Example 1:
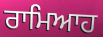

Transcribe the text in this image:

ਰਾਮਿਆਹ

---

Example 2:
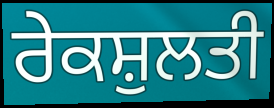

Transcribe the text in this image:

ਰੇਕਸ਼ੁਲਤੀ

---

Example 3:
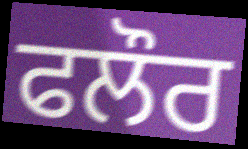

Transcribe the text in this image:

ਫਲੌਰ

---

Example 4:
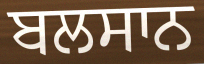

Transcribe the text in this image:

ਬਲਸਾਨ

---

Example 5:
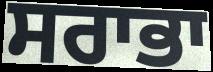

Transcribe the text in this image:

ਸਰਾਭਾ